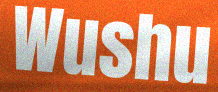
Wushu